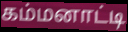
கம்மனாட்டி